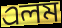
এলম